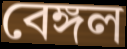
বেঙ্গল